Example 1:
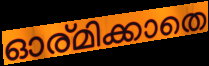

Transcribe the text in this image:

ഓര്മിക്കാതെ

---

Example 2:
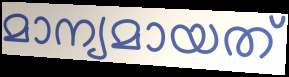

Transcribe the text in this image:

മാന്യമായത്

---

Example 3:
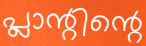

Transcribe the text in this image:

പ്ലാന്റിന്റെ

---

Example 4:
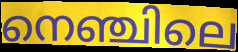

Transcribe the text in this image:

നെഞ്ചിലെ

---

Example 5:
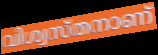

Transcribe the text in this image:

വിശ്വസ്തനാണ്